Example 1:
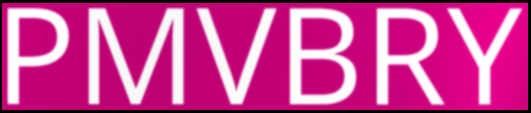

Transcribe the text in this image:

PMVBRY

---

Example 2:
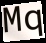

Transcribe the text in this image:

Mq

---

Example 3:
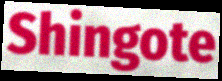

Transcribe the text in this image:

Shingote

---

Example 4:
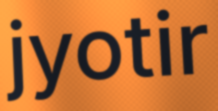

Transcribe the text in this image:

jyotir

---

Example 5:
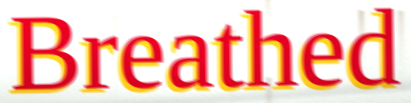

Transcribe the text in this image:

Breathed